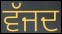
ਵੱਜਦ